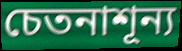
চেতনাশূন্য